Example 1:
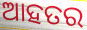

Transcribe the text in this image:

ଆହତର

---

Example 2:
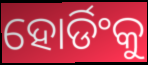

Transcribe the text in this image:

ହୋର୍ଡିଂକୁ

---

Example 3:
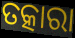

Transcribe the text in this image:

ତତ୍କାରା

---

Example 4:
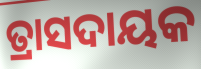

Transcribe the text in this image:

ତ୍ରାସଦାୟକ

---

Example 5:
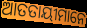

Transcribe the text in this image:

ଆତତାୟୀମାନେ